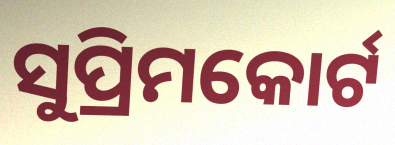
ସୁପ୍ରିମକୋର୍ଟ